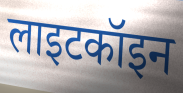
लाइटकॉइन